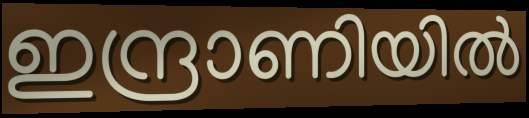
ഇന്ദ്രാണിയിൽ